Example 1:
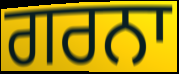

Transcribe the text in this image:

ਗਰਨਾ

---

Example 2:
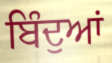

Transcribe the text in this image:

ਬਿੰਦੁਆਂ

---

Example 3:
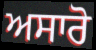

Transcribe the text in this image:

ਅਸਾਰੋ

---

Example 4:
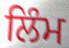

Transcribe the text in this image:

ਲਿੰਮ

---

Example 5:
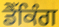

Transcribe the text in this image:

ਡੈੱਕਿੰਗ